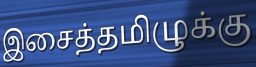
இசைத்தமிழுக்கு